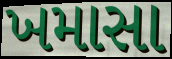
ખમાસા